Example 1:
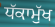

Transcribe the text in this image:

ਧੱਕਾਮੁੱਖ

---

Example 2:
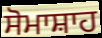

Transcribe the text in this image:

ਸੋਮਾਸ਼ਾਹ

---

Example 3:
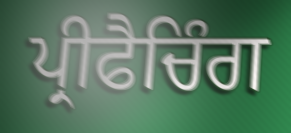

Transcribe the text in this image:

ਪ੍ਰੀਫੈਚਿੰਗ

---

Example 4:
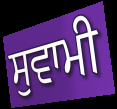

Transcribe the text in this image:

ਸੁਵਾਮੀ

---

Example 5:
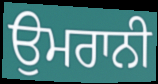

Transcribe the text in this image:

ਉਮਰਾਨੀ